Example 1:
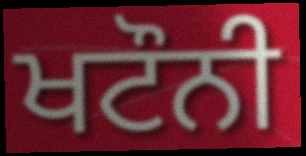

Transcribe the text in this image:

ਖਟੌਨੀ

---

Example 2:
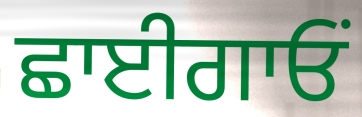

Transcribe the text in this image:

ਛਾਈਗਾਓਂ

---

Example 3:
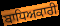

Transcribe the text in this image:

ਬਾਧਿਅਕਾਰੀ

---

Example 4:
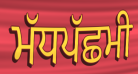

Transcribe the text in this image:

ਮੱਧਪੱਛਮੀ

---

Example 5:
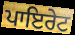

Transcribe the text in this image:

ਪਾਇਰੇਟ